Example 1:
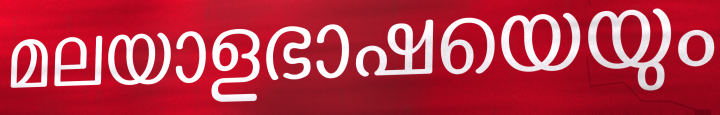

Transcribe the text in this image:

മലയാളഭാഷയെയും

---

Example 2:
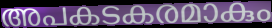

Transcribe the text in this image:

അപകടകരമാകും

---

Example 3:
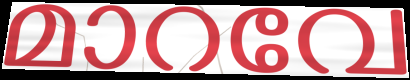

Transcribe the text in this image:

മാറവേ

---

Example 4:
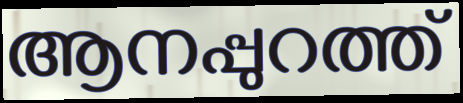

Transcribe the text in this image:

ആനപ്പുറത്ത്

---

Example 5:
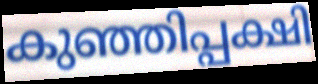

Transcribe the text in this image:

കുഞ്ഞിപ്പക്ഷി